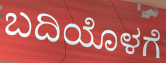
ಬದಿಯೊಳಗೆ